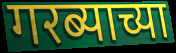
गरब्याच्या